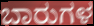
ಬಾರುಗಳ